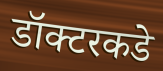
डॉक्टरकडे